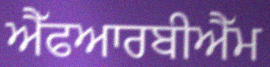
ਐੱਫਆਰਬੀਐੱਮ